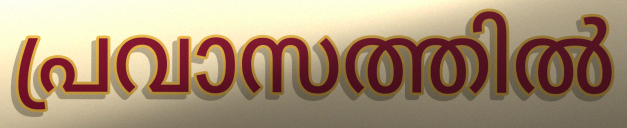
പ്രവാസത്തിൽ